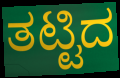
ತಟ್ಟಿದ